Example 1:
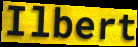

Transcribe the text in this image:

Ilbert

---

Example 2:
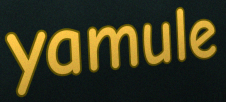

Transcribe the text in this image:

yamule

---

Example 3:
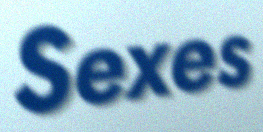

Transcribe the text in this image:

Sexes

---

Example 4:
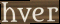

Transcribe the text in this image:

hver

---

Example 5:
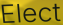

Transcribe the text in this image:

Elect